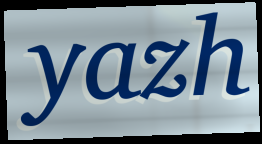
yazh